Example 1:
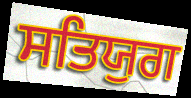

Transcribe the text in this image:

ਸਤਿਯੁਗ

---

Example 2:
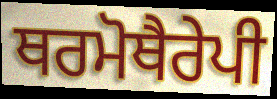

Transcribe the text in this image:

ਥਰਮੋਥੈਰੇਪੀ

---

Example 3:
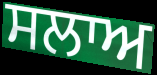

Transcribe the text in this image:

ਸਲਾਅ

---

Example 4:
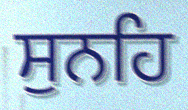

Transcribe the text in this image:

ਸੁਨਹਿ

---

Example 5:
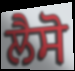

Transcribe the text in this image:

ਲੈਸੋ